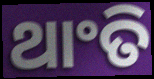
ଥାଂତି